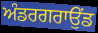
ਅੰਡਰਗਰਾਉਂਡ